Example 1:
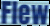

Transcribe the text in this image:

Flew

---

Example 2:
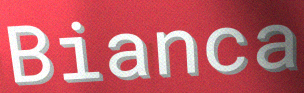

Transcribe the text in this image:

Bianca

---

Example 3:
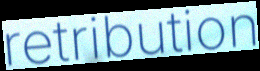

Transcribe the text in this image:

retribution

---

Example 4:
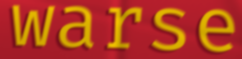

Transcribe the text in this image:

warse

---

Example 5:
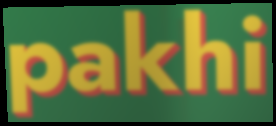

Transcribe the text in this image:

pakhi